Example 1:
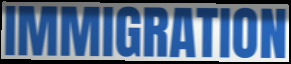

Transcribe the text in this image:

IMMIGRATION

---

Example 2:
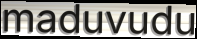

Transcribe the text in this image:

maduvudu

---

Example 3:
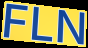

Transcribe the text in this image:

FLN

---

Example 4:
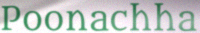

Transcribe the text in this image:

Poonachha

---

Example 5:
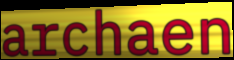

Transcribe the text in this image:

archaen